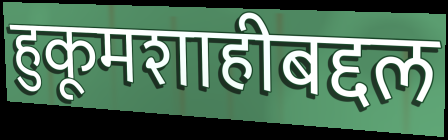
हुकूमशाहीबद्दल